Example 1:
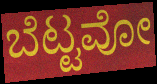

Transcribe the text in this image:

ಬೆಟ್ಟವೋ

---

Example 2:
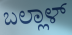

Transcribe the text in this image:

ಬಲ್ಲಾಳ್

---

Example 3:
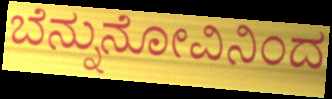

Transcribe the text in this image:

ಬೆನ್ನುನೋವಿನಿಂದ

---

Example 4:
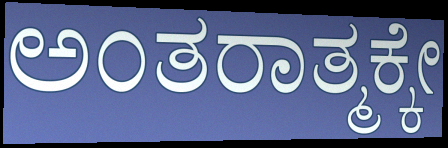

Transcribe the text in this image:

ಅಂತರಾತ್ಮಕ್ಕೇ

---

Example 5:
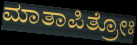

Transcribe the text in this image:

ಮಾತಾಪಿತ್ರೋಃ